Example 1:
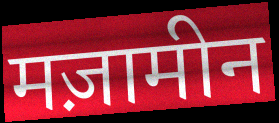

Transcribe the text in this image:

मज़ामीन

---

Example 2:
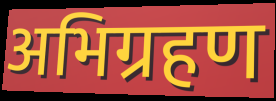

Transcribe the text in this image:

अभिग्रहण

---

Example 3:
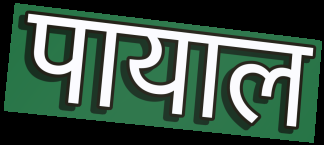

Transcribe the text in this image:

पायाल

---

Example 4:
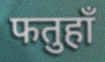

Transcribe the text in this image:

फतुहाँ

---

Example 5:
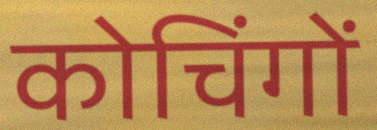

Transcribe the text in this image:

कोचिंगों